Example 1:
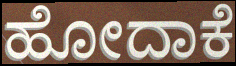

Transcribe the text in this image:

ಹೋದಾಕೆ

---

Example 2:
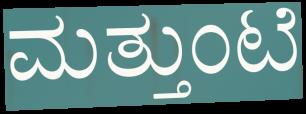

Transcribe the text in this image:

ಮತ್ತುಂಟೆ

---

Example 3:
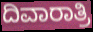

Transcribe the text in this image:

ದಿವಾರಾತ್ರಿ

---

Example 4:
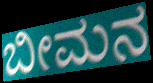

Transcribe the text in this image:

ಬೀಮನ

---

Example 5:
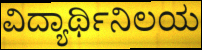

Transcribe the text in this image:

ವಿದ್ಯಾರ್ಥಿನಿಲಯ